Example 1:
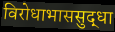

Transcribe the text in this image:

विरोधाभाससुद्धा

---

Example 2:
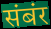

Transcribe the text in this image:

संबंर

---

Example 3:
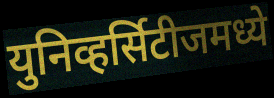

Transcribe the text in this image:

युनिव्हर्सिटीजमध्ये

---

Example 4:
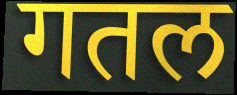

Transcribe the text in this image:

गतल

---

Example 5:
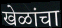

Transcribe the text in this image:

खेळांचा